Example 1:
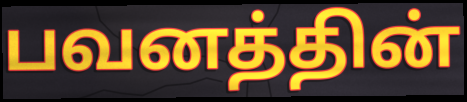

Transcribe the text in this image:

பவனத்தின்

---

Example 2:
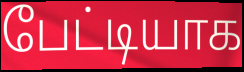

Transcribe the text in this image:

பேட்டியாக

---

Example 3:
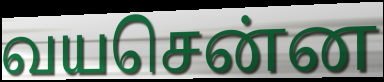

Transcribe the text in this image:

வயசென்ன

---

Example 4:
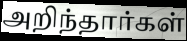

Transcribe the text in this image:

அறிந்தார்கள்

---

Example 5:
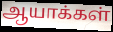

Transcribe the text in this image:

ஆயாக்கள்